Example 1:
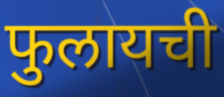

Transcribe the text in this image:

फुलायची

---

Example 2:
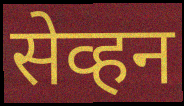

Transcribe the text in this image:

सेव्हन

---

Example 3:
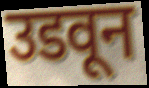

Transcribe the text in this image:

उडवून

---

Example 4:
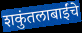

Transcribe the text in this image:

शकुंतलाबाईंचे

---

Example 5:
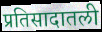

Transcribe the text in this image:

प्रतिसादातली